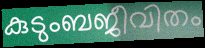
കുടുംബജീവിതം